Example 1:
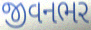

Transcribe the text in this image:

જીવનભર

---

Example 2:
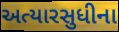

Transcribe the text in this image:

અત્યારસુધીના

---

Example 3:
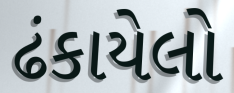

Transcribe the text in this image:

ઢંકાયેલો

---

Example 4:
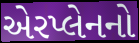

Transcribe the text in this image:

એરપ્લેનનો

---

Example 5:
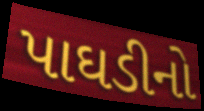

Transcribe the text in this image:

પાઘડીનો